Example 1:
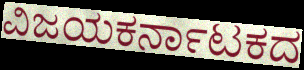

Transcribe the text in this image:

ವಿಜಯಕರ್ನಾಟಕದ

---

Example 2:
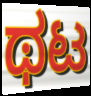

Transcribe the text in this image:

ಥಟ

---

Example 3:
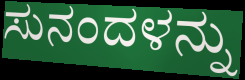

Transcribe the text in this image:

ಸುನಂದಳನ್ನು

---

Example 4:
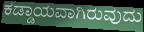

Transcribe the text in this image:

ಕಡ್ಡಾಯವಾಗಿರುವುದು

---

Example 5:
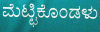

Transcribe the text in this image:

ಮೆಟ್ಟಿಕೊಂಡಳು